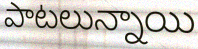
పాటలున్నాయి